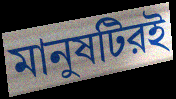
মানুষটিরই